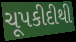
ચૂપકીદીથી